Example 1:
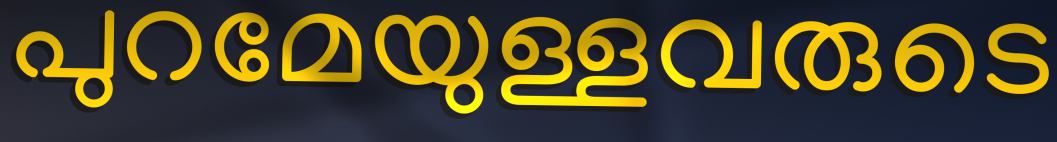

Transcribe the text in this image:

പുറമേയുള്ളവരുടെ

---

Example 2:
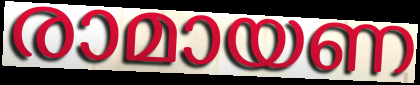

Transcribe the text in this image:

രാമായണ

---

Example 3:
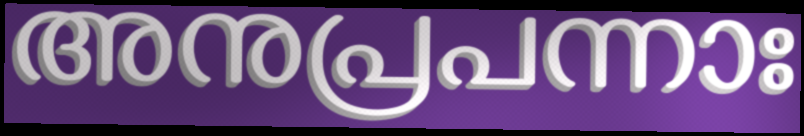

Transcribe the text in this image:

അനുപ്രപന്നാഃ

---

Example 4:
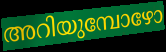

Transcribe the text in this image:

അറിയുമ്പോഴോ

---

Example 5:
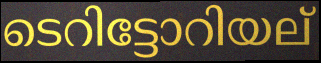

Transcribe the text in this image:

ടെറിട്ടോറിയല്